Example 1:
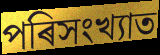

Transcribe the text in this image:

পৰিসংখ্যাত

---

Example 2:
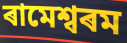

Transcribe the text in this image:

ৰামেশ্বৰম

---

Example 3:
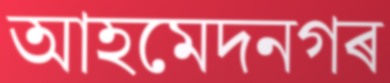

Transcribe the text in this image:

আহমেদনগৰ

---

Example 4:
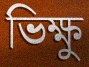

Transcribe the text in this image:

ভিক্ষু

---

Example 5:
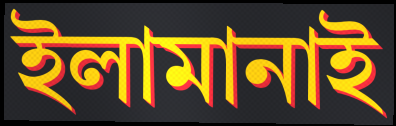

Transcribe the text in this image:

ইলামানাই